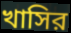
খাসির